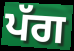
ਪੱਗ